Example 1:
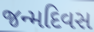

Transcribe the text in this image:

જન્મદિવસ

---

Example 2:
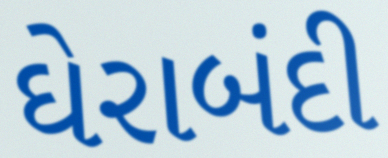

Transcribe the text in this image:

ઘેરાબંદી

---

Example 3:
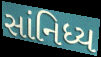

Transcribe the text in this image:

સાંનિધ્ય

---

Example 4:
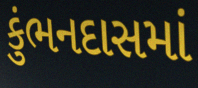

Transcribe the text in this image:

કુંભનદાસમાં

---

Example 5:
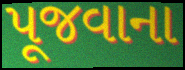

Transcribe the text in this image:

પૂજવાના